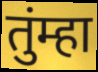
तुंम्हा